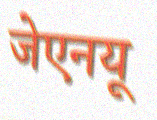
जेएनयू